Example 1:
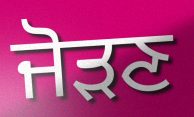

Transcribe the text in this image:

ਜੋੜਣ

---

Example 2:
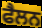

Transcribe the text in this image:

ਫੈਲਨ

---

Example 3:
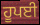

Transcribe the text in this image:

ਹੂਪਈ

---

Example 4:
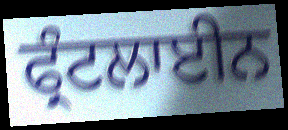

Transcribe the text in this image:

ਫ੍ਰੰਟਲਾਈਨ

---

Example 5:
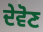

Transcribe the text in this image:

ਦੇਵੋਣ